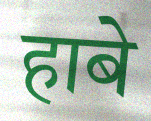
हाबे